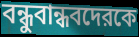
বন্ধুবান্ধবদেরকে